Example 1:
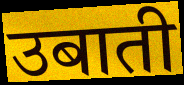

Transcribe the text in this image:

उबाती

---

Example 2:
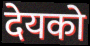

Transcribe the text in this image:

देयको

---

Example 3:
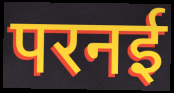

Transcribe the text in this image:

परनई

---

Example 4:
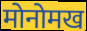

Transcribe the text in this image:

मोनोमख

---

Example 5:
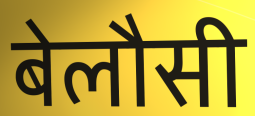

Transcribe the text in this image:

बेलौसी